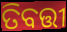
ତିବତ୍ତୀ